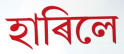
হাৰিলে